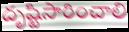
దృష్టిసారించాలి